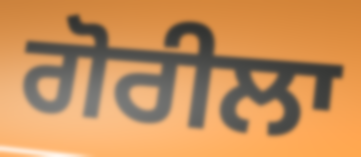
ਗੋਰੀਲਾ